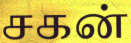
சகன்